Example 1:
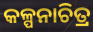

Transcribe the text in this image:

କଳ୍ପନାଚିତ୍ର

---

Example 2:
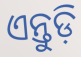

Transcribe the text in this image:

ଏନ୍ତୁଡ଼ି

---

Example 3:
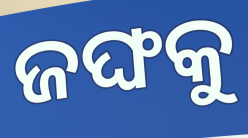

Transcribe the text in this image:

ଜଙ୍ଘକୁ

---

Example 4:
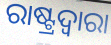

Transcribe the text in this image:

ରାଷ୍ଟ୍ରଦ୍ଵାରା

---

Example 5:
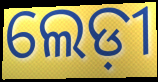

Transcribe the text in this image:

ଲେଡ଼ୀ